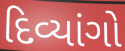
દિવ્યાંગો